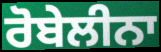
ਰੋਬੇਲੀਨਾ